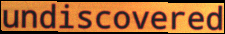
undiscovered